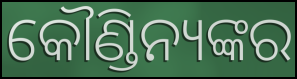
କୌଣ୍ଡିନ୍ୟଙ୍କର